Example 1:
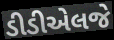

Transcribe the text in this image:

ડીડીએલજે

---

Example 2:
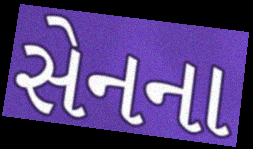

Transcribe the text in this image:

સેનના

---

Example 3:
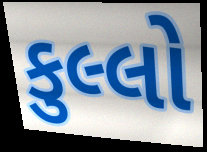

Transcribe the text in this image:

કુલ્લો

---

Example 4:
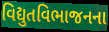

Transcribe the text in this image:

વિદ્યુતવિભાજનના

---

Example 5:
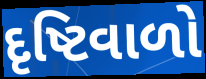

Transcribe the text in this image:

દૃષ્ટિવાળો